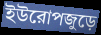
ইউরোপজুড়ে